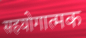
सहयोगात्मक